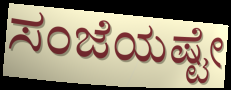
ಸಂಜೆಯಷ್ಟೇ